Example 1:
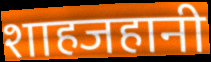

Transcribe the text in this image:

शाहजहानी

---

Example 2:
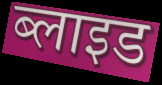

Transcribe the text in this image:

ब्लाइड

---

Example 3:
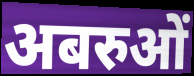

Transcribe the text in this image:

अबरुओं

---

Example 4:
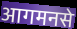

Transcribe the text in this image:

आगमनसे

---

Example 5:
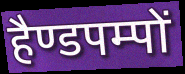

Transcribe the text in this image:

हैण्डपम्पों